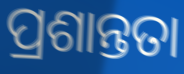
ପ୍ରଶାନ୍ତତା